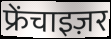
फ्रेंचाइज़र